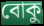
বোকু